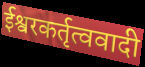
ईश्वरकर्तृत्ववादी